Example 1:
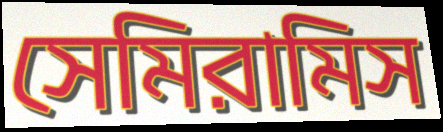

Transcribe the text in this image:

সেমিরামিস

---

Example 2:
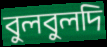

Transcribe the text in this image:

বুলবুলদি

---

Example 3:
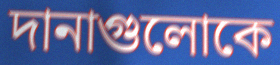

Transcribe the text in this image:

দানাগুলোকে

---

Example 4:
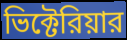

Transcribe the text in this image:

ভিক্টেরিয়ার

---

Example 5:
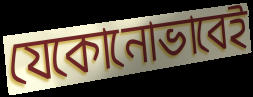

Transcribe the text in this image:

যেকোনোভাবেই